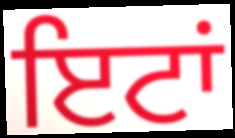
ਇਟਾਂ